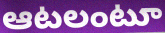
ఆటలంటూ